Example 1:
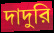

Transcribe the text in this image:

দাদুরি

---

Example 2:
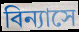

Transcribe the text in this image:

বিন্যাসে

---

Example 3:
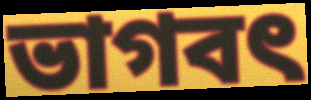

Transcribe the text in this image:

ভাগবৎ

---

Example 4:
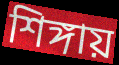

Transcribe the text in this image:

শিঙ্গায়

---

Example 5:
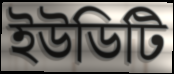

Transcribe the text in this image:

ইউডিটি